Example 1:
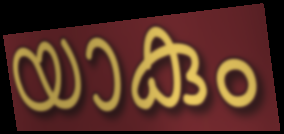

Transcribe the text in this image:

യാകും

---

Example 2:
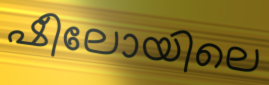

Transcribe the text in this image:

ഷീലോയിലെ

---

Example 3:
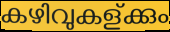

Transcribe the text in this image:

കഴിവുകള്ക്കും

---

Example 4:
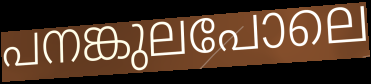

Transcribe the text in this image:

പനങ്കുലപോലെ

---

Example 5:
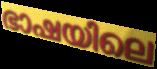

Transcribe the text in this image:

ഭാഷയിലെ